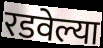
रडवेल्या